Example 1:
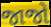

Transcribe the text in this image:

જાજો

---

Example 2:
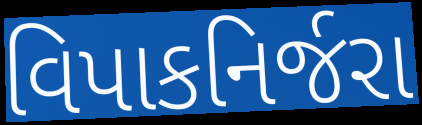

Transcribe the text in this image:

વિપાકનિર્જરા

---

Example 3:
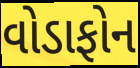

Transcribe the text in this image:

વોડાફોન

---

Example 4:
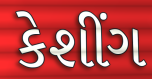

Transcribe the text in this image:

કેશીંગ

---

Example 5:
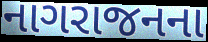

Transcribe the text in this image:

નાગરાજનના